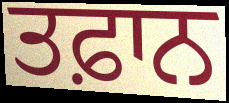
ਤਫ਼ਾਨ